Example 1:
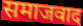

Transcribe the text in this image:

समाजवाद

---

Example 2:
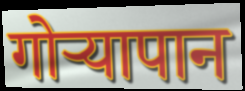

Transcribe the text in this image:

गोऱ्यापान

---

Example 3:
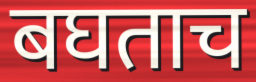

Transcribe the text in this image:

बघताच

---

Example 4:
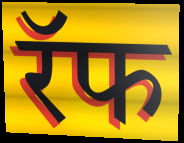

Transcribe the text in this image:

रॅफ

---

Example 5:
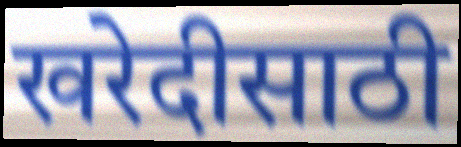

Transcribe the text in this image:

खरेदीसाठी